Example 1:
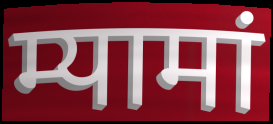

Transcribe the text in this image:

म्यामां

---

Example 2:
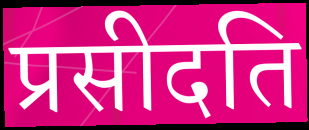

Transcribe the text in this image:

प्रसीदति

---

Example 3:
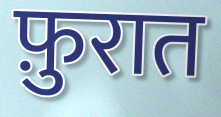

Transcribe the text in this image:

फ़ुरात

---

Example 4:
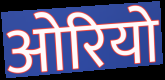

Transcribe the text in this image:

ओरियो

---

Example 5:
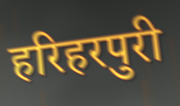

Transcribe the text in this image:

हरिहरपुरी